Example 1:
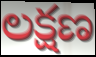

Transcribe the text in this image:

లక్షణ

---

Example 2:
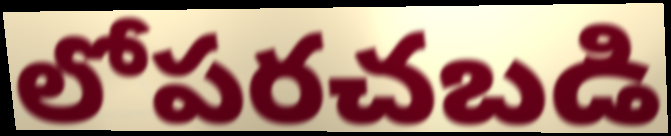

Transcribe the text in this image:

లోపరచబడి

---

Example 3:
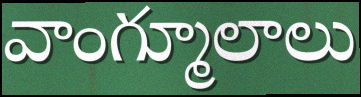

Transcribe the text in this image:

వాంగ్మూలాలు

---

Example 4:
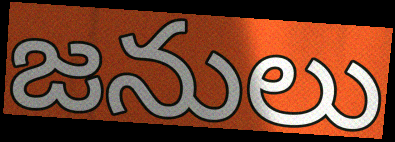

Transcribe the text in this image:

జనులు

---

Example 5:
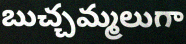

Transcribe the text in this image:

బుచ్చమ్మలుగా